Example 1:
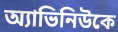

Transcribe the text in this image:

অ্যাভিনিউকে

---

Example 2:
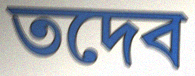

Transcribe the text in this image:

তদেব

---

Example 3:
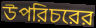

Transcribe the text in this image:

উপরিচরের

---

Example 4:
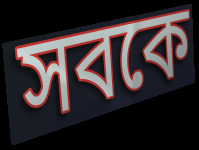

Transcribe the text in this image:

সবকে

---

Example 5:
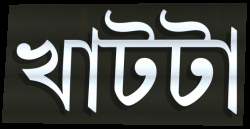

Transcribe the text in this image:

খাটটা